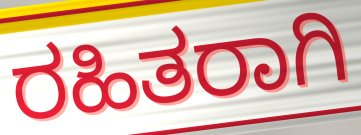
ರಹಿತರಾಗಿ